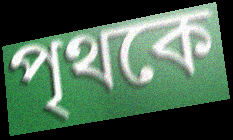
পৃথকে